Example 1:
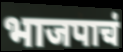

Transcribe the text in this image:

भाजपाचं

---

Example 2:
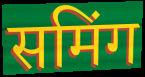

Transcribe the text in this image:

समिंग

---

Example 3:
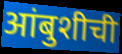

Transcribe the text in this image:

आंबुशीची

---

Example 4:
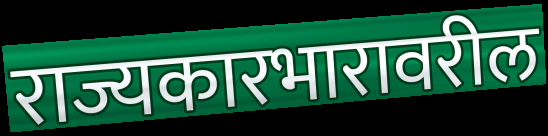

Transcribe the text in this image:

राज्यकारभारावरील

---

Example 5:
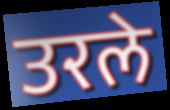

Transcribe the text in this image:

उरले